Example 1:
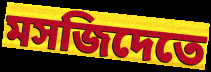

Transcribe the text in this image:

মসজিদেতে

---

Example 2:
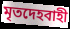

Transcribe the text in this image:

মৃতদেহবাহী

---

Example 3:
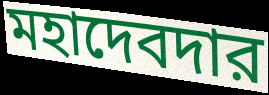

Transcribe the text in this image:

মহাদেবদার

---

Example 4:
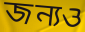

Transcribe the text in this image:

জন্যও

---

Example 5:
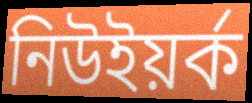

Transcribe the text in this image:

নিউইয়র্ক